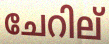
ചേറില്